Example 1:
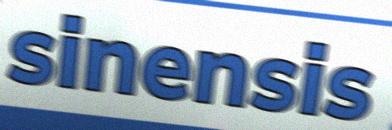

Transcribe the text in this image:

sinensis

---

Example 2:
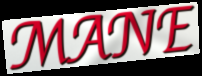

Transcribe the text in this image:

MANE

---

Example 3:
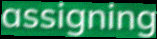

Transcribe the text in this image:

assigning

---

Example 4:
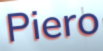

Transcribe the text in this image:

Piero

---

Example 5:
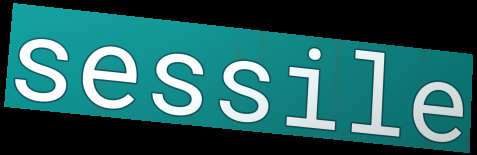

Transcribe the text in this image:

sessile